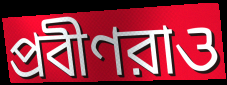
প্রবীণরাও